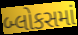
બ્લોકસમાં